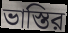
ভাস্তির